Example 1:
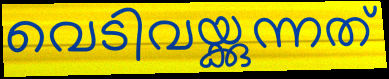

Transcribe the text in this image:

വെടിവയ്ക്കുന്നത്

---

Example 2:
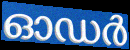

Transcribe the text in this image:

ഓഡർ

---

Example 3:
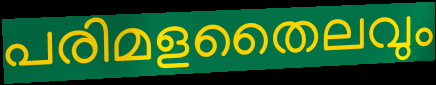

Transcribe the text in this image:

പരിമളതൈലവും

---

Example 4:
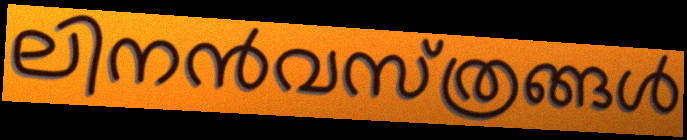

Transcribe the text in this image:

ലിനൻവസ്‌ത്രങ്ങൾ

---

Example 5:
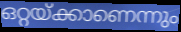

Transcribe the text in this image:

ഒറ്റയ്ക്കാണെന്നും